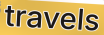
travels